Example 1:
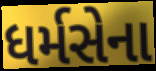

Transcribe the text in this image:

ધર્મસેના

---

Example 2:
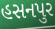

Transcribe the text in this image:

હસનપુર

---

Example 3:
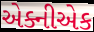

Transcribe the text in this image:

એક્નીએક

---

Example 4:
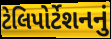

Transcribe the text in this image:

ટેલિપોર્ટેશનનું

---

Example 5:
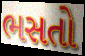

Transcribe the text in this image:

ભસતો